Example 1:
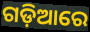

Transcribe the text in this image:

ଗଡ଼ିଆରେ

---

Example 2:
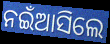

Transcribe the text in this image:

ନଇଁଆସିଲେ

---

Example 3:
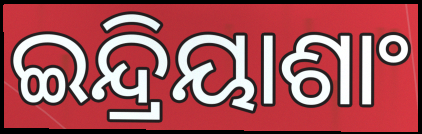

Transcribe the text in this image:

ଇନ୍ଦ୍ରିୟାଶାଂ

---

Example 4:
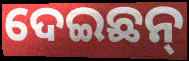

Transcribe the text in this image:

ଦେଇଛନ୍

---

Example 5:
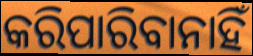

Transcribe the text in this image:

କରିପାରିବାନାହିଁ